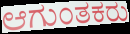
ಆಗುಂತಕರು